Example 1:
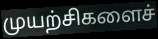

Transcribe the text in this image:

முயற்சிகளைச்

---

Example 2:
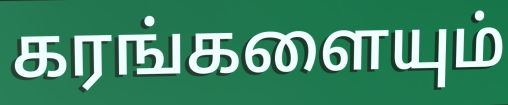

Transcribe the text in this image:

கரங்களையும்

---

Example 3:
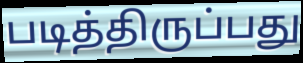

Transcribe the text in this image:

படித்திருப்பது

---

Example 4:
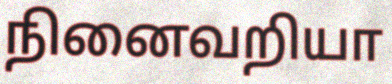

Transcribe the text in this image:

நினைவறியா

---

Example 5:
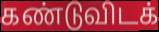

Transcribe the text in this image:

கண்டுவிடக்